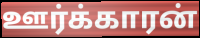
ஊர்க்காரன்